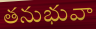
తనుభువా